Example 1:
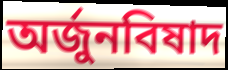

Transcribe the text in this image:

অর্জুনবিষাদ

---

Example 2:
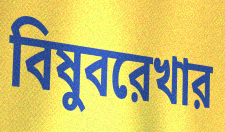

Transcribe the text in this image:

বিষুবরেখার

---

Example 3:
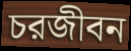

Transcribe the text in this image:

চরজীবন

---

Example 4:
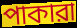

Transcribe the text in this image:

পাকারা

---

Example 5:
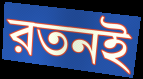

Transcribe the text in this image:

রতনই